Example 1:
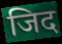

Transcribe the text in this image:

जिद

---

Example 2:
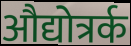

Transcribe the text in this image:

औद्योत्रर्क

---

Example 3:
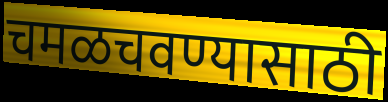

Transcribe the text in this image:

चमळचवण्यासाठी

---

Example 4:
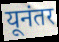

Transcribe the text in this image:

यूनंतर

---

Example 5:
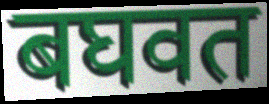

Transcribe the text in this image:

बघवत